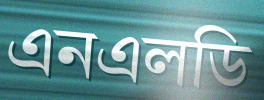
এনএলডি